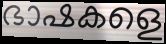
ഭാഷകളെ